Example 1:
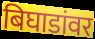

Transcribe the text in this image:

बिघाडांवर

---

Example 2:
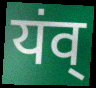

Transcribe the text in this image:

यंव्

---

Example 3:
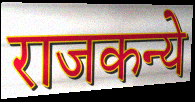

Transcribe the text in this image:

राजकन्ये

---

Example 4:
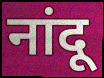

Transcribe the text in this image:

नांदू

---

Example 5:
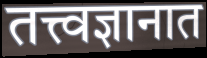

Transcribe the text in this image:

तत्त्वज्ञानात